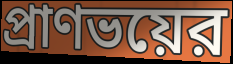
প্রাণভয়ের